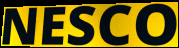
NESCO